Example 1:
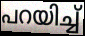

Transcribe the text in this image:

പറയിച്ച്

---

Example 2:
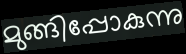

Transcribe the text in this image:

മുങ്ങിപ്പോകുന്നു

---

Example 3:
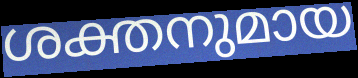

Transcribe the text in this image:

ശക്തനുമായ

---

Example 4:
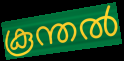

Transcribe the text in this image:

കൂന്തൽ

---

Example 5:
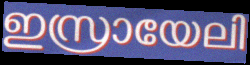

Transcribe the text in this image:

ഇസ്രായേലി